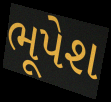
ભૂપેશ